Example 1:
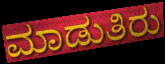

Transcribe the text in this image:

ಮಾಡುತಿರು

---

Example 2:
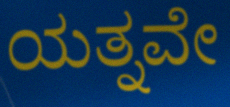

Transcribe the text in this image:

ಯತ್ನವೇ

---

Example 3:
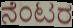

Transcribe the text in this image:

ನೆಂಟರ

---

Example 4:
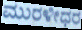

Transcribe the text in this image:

ಮುರಳೀಧರ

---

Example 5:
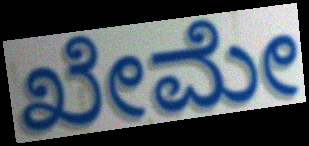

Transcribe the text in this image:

ಖೇಮೇ